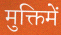
मुक्तिमें